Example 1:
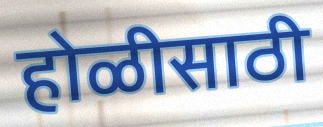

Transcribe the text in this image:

होळीसाठी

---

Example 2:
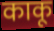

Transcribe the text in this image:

काकू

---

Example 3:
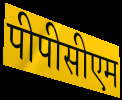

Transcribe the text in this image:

पीपीसीएम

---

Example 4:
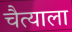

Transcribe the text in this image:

चैत्याला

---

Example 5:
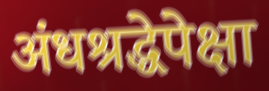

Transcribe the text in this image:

अंधश्रद्धेपेक्षा